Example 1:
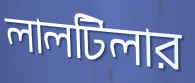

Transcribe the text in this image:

লালটিলার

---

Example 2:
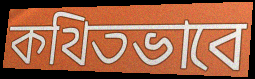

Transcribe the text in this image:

কথিতভাবে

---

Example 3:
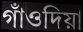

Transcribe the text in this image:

গাঁওদিয়া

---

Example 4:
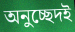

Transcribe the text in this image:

অনুচ্ছেদই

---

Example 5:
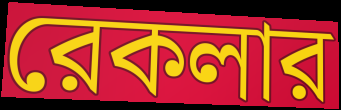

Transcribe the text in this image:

রেকলার